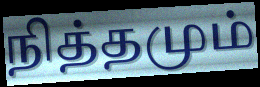
நித்தமும்